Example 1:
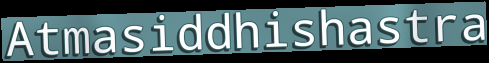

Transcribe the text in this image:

Atmasiddhishastra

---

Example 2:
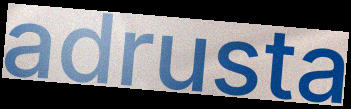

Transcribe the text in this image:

adrusta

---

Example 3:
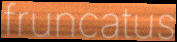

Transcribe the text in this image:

fruncatus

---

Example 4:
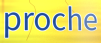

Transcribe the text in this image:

proche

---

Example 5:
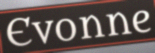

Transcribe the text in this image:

Evonne